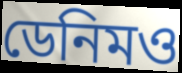
ডেনিমও